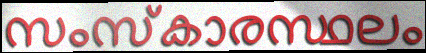
സംസ്കാരസ്ഥലം